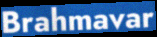
Brahmavar